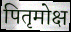
पितृमोक्ष